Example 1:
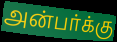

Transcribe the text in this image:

அன்பர்க்கு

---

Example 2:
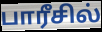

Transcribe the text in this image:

பாரீசில்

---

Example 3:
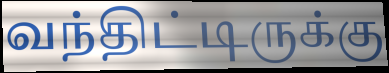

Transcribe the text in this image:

வந்திட்டிருக்கு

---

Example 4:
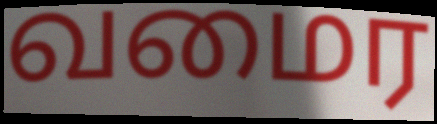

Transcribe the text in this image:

வமைர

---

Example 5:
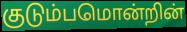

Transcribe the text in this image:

குடும்பமொன்றின்